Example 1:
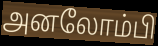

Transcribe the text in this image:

அனலோம்பி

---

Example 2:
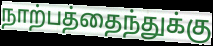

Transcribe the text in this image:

நாற்பத்தைந்துக்கு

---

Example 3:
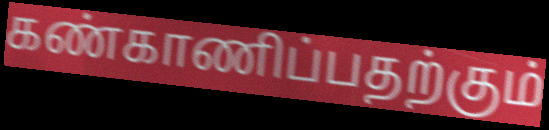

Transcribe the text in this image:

கண்காணிப்பதற்கும்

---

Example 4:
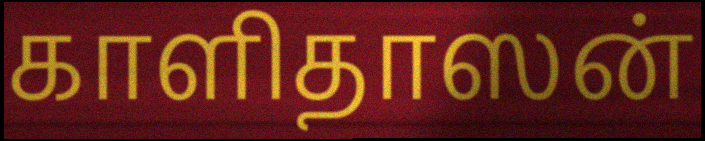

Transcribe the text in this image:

காளிதாஸன்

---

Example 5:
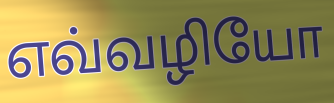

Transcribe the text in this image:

எவ்வழியோ